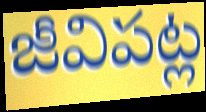
జీవిపట్ల